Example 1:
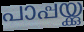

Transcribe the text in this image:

പാപ്പയ്ക്കു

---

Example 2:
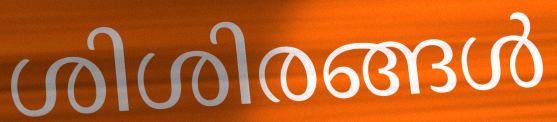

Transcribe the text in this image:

ശിശിരങ്ങൾ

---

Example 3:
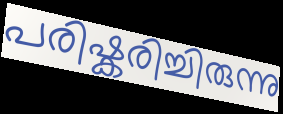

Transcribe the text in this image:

പരിഷ്കരിച്ചിരുന്നു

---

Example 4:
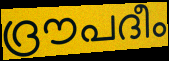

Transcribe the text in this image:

ദ്രൗപദീം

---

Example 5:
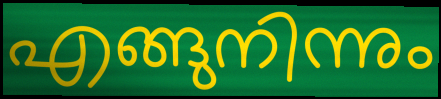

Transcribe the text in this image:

എങ്ങുനിന്നും